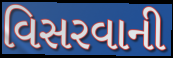
વિસરવાની